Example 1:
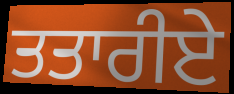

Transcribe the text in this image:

ਤਤਾਰੀਏ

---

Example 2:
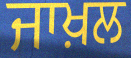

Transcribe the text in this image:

ਜਾਖ਼ਲ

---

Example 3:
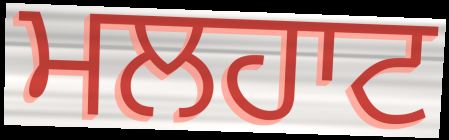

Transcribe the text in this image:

ਮਲਹਾਟ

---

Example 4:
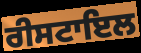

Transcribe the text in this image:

ਰੀਸਟਾਇਲ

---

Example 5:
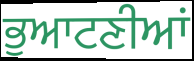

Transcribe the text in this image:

ਭੁਆਟਣੀਆਂ